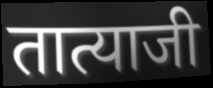
तात्याजी